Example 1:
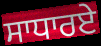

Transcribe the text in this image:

ਸਾਧਾਰਏ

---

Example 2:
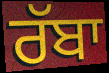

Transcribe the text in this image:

ਰੱਬਾ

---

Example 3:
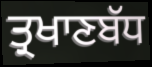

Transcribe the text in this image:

ਤ੍ਰਖਾਣਬੱਧ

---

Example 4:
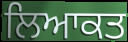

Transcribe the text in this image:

ਲਿਆਕਤ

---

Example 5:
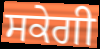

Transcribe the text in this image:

ਸਕੇਗੀ